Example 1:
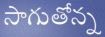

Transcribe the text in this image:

సాగుతోన్న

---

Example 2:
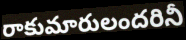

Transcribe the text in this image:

రాకుమారులందరినీ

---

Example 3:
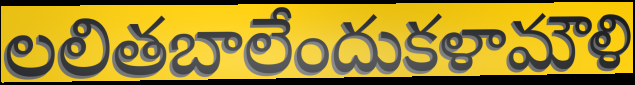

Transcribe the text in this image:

లలితబాలేందుకళామౌళి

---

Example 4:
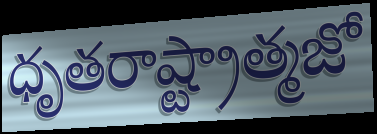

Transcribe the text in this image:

ధృతరాష్ట్రాత్మజో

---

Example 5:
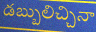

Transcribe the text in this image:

డబ్బులిచ్చినా